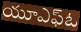
యూఎఫ్ఓ